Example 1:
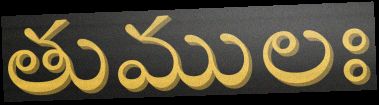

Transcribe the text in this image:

తుములః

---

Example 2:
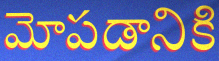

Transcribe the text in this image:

మోపడానికి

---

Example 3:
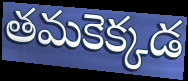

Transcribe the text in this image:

తమకెక్కడ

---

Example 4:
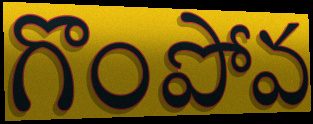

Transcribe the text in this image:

గొంపోవ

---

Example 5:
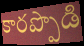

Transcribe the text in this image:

కారప్పొడి